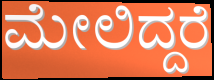
ಮೇಲಿದ್ದರೆ